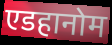
एडहानोम